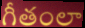
గీతంలా